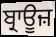
ਬ੍ਰਾਊਜ਼